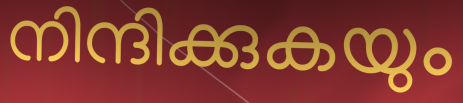
നിന്ദിക്കുകയും